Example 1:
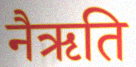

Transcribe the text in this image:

नैऋति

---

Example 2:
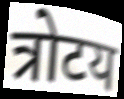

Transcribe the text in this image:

त्रोटय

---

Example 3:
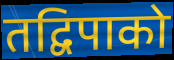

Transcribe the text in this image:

तद्विपाको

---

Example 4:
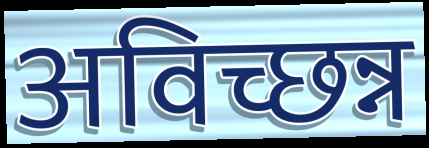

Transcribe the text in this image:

अविच्छन्न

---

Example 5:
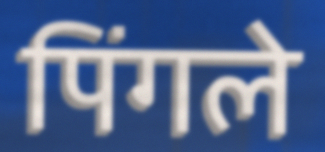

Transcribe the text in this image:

पिंगले